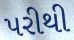
પરીથી